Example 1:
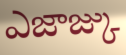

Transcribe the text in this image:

ఎజాజ్కు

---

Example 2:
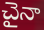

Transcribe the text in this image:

చైనా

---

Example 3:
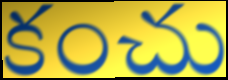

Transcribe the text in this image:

కంచు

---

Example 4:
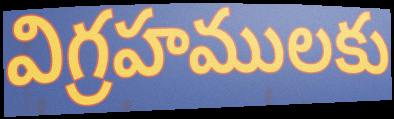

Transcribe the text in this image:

విగ్రహములకు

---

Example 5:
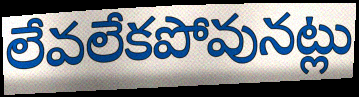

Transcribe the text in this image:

లేవలేకపోవునట్లు